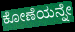
ಕೋಣೆಯನ್ನೇ